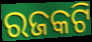
ରଜକଟି